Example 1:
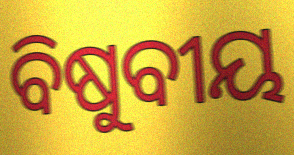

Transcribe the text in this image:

ବିଷୁବୀୟ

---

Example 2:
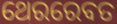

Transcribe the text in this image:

ଥେରରେବତ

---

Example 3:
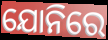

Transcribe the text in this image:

ଯୋନିରେ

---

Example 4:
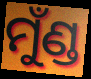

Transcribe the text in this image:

ମୁଁଣ୍ଡ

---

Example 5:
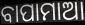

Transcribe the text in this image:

ବାପାମାଆ